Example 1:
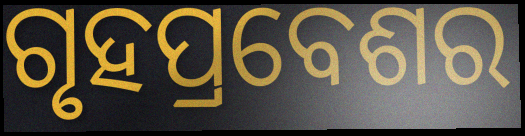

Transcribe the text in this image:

ଗୃହପ୍ରବେଶର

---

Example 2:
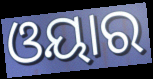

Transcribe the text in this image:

ଓୟାର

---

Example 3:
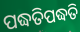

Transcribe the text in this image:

ପଦ୍ଧତିପଦ୍ଧତି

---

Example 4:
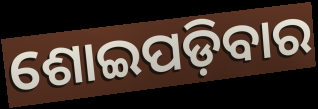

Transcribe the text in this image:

ଶୋଇପଡ଼ିବାର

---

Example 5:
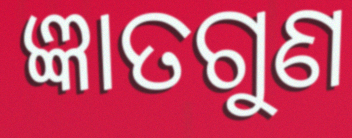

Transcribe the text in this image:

ଜ୍ଞାତଗୁଣ